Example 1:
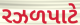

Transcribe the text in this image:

રઝળપાટે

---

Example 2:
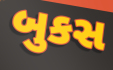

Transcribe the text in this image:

બુકસ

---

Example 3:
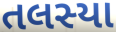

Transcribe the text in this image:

તલસ્યા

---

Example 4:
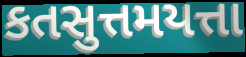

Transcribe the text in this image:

કતસુત્તમયત્તા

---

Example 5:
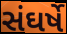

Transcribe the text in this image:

સંઘર્ષે